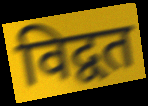
विद्वत